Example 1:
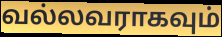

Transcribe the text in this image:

வல்லவராகவும்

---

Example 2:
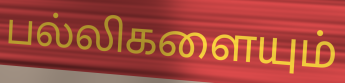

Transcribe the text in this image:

பல்லிகளையும்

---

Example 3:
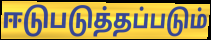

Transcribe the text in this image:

ஈடுபடுத்தப்படும்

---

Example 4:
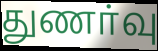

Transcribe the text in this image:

துணர்வு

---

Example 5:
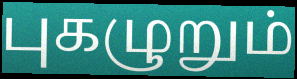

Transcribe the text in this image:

புகழுறும்